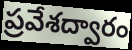
ప్రవేశద్వారం